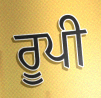
ਰੂਪੀ